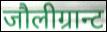
जौलीग्रान्ट